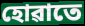
হোৱাতে